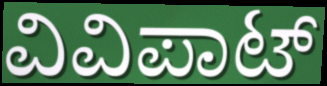
ವಿವಿಪಾಟ್